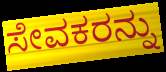
ಸೇವಕರನ್ನು